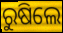
ରୁଷିଲେ